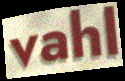
vahl